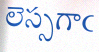
లెస్సగాఁ